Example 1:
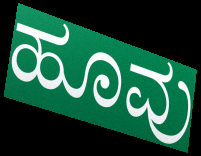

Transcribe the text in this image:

ಹೂವು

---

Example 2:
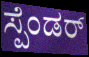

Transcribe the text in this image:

ಸ್ಪೆಂಡರ್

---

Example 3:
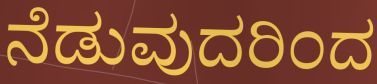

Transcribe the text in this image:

ನೆಡುವುದರಿಂದ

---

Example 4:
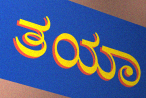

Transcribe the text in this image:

ತಯಾ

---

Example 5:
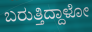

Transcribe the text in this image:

ಬರುತ್ತಿದ್ದಾಳೋ